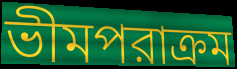
ভীমপরাক্রম